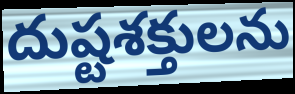
దుష్టశక్తులను